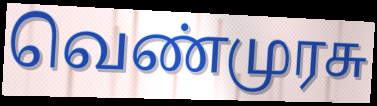
வெண்முரசு